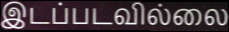
இடப்படவில்லை